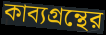
কাব্যগ্রন্থের